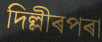
দিল্লীৰপৰা